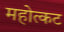
महोत्कट